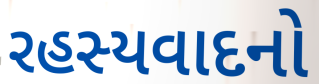
રહસ્યવાદનો